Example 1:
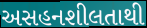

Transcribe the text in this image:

અસહનશીલતાથી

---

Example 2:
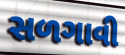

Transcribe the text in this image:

સળગાવી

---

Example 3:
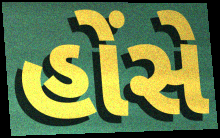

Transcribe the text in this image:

હોંસે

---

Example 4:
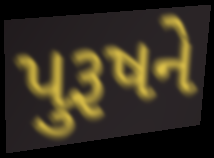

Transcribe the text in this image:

પુરૂષને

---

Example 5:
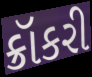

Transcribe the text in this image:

ક્રૉકરી